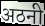
अठनी